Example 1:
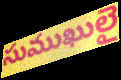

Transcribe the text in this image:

సుముఖులై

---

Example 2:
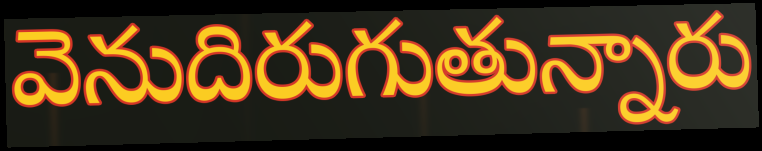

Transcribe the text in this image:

వెనుదిరుగుతున్నారు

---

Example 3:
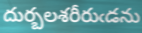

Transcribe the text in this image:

దుర్బలశరీరుఁడను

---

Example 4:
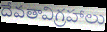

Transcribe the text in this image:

దేవతావిగ్రహాలు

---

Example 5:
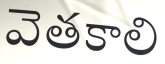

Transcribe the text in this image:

వెతకాలి